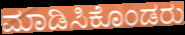
ಮಾಡಿಸಿಕೊಂಡರು